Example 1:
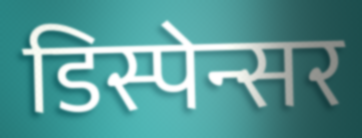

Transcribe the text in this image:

डिस्पेन्सर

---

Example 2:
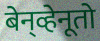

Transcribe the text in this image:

बेन्‌व्हेनूतो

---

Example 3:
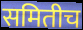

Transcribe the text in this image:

समितीच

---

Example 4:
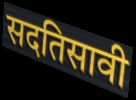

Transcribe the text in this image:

सदतिसावी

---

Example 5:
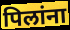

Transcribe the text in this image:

पिलांना